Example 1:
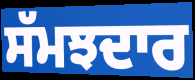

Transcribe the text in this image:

ਸੱਮਝਦਾਰ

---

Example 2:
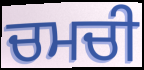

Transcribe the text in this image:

ਚਮਚੀ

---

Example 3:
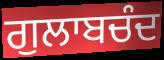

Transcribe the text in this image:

ਗੁਲਾਬਚੰਦ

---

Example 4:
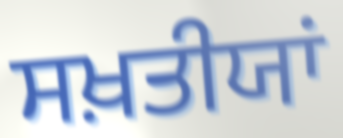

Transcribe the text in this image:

ਸਖ਼ਤੀਯਾਂ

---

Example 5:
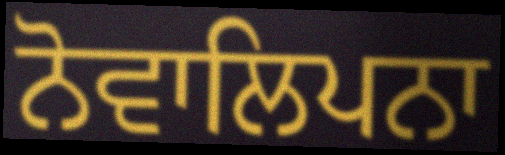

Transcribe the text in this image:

ਨੋਵਾਲਿਪਨਾ